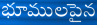
భూములపైన